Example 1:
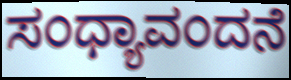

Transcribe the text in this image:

ಸಂಧ್ಯಾವಂದನೆ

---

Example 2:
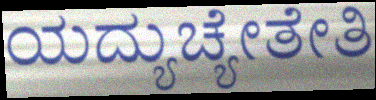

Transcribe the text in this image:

ಯದ್ಯುಚ್ಯೇತೇತಿ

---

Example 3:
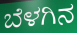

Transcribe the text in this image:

ಬೆಳಗಿನ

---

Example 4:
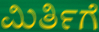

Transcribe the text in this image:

ಮಿರ್ತಿಗೆ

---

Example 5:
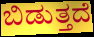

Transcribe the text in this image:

ಬಿಡುತ್ತದೆ